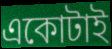
একোটাই